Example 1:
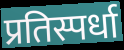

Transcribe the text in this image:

प्रतिस्पर्धा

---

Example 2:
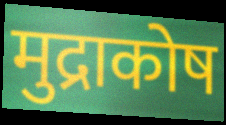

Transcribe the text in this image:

मुद्राकोष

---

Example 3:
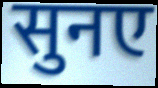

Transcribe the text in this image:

सुनए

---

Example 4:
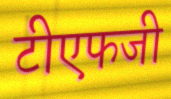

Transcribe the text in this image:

टीएफजी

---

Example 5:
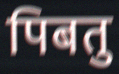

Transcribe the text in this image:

पिबतु